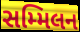
સમ્મિલન